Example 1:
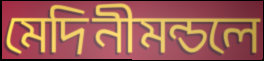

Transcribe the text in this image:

মেদিনীমন্ডলে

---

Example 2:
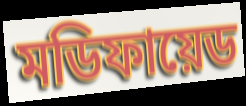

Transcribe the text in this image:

মডিফায়েড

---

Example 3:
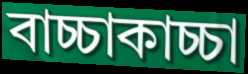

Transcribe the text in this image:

বাচ্চাকাচ্চা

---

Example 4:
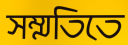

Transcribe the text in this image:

সম্মতিতে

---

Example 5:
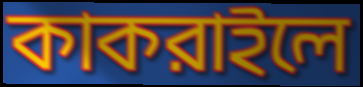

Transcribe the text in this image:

কাকরাইলে